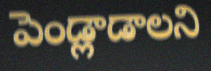
పెండ్లాడాలని